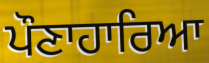
ਪੌਣਾਹਾਰਿਆ